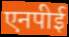
एनपीई